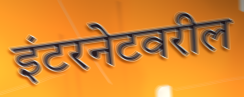
इंटरनेटवरील